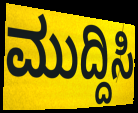
ಮುದ್ದಿಸಿ